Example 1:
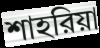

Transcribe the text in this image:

শাহরিয়া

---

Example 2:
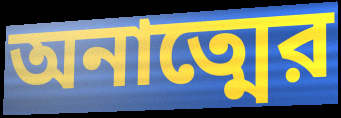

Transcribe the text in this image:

অনাত্মের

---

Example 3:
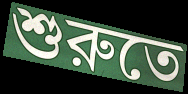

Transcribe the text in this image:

শুরুতে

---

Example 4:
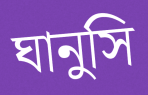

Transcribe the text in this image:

ঘানুসি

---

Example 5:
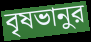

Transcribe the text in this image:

বৃষভানুর